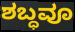
ಶಬ್ಧವೂ